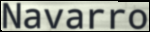
Navarro